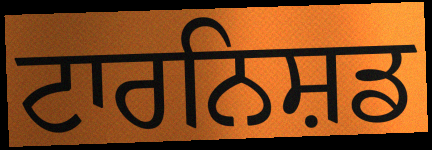
ਟਾਰਨਿਸ਼ਡ